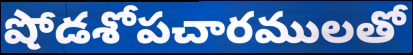
షోడశోపచారములతో